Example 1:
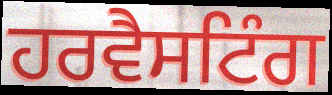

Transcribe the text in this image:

ਹਰਵੈਸਟਿੰਗ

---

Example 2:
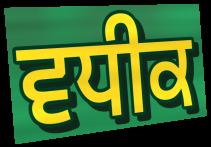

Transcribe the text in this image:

ਵਧੀਕ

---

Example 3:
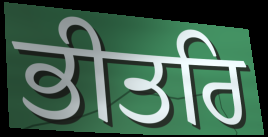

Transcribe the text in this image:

ਭੀਤਰਿ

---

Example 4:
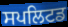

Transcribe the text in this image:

ਸਪਲਿਟਡ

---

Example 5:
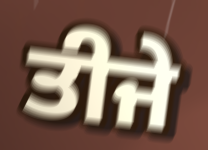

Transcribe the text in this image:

ਤੀਜੇ